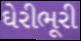
ઘેરીભૂરી